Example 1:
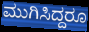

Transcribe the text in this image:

ಮುಗಿಸಿದ್ದರೂ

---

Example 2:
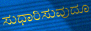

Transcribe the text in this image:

ಸುಧಾರಿಸುವುದೂ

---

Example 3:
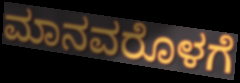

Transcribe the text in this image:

ಮಾನವರೊಳಗೆ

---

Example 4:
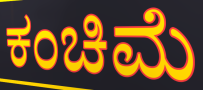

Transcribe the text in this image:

ಕಂಚಿಮೆ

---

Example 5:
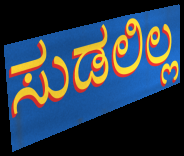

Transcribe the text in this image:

ಸುಡಲಿಲ್ಲ